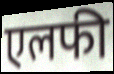
एलफी